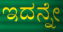
ಇದನ್ನೇ